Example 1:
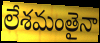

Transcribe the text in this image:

లేశమంతైనా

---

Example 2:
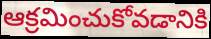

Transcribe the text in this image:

ఆక్రమించుకోవడానికి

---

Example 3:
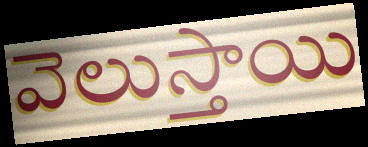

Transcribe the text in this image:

వెలుస్తాయి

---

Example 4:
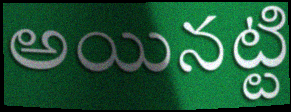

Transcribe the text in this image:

అయినట్టి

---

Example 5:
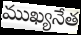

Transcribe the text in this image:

ముఖ్యనేత